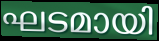
ഘടമായി